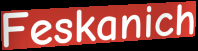
Feskanich